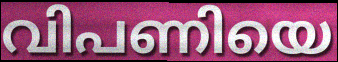
വിപണിയെ